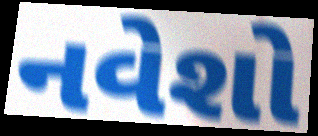
નવેશો